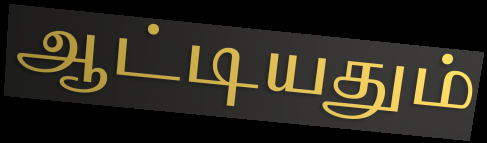
ஆட்டியதும்